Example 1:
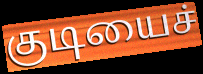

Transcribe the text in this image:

குடியைச்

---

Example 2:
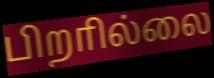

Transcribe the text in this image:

பிறரில்லை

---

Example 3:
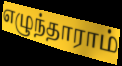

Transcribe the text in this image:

எழுந்தாராம்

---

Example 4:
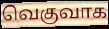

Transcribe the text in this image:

வெகுவாக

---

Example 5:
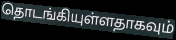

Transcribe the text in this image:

தொடங்கியுள்ளதாகவும்